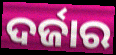
ଦର୍ଜାର